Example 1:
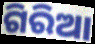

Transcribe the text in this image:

ଗିରିଆ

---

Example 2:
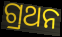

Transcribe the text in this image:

ଗ୍ରଥନ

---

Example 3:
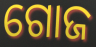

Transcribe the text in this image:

ଗୋଜ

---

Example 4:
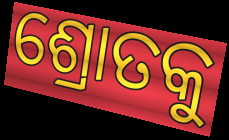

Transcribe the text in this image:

ଶ୍ରୋତକୁ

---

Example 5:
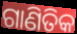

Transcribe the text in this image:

ଗାଣିତିକ